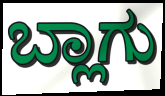
ಬ್ಲಾಗು